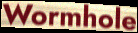
Wormhole